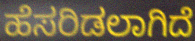
ಹೆಸರಿಡಲಾಗಿದೆ